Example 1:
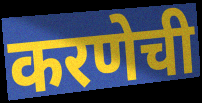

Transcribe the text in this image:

करणेची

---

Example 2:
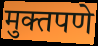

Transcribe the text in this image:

मुक्तपणे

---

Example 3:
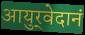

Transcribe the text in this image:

आयुर्वेदानं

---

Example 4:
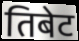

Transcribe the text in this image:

तिबेट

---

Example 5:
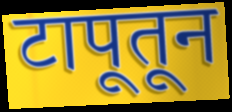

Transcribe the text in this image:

टापूतून